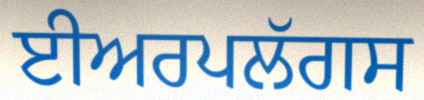
ਈਅਰਪਲੱਗਸ